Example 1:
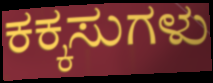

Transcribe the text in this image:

ಕಕ್ಕಸುಗಳು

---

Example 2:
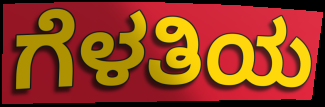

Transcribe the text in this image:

ಗೆಳತಿಯ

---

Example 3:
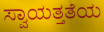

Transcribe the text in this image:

ಸ್ವಾಯತ್ತತೆಯ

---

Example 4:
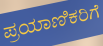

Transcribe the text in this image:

ಪ್ರಯಾಣಿಕರಿಗೆ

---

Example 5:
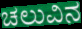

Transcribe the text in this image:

ಚಲುವಿನ